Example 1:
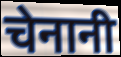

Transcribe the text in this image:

चेनानी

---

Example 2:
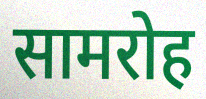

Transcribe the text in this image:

सामरोह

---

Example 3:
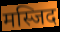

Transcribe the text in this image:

मस्जिद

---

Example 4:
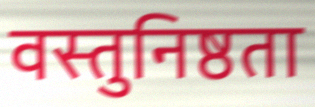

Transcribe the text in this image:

वस्तुनिष्ठता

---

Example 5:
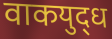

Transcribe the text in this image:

वाकयुद्ध